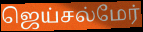
ஜெய்சல்மேர்